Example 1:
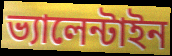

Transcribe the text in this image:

ভ্যালেন্টাইন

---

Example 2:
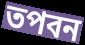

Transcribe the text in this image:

তপবন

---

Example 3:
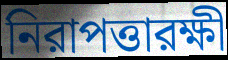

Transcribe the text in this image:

নিরাপত্তারক্ষী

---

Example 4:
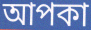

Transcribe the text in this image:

আপকা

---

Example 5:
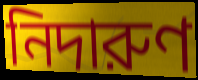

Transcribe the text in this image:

নিদারুণ